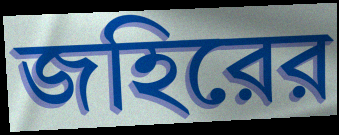
জহিরের